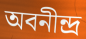
অবনীন্দ্র